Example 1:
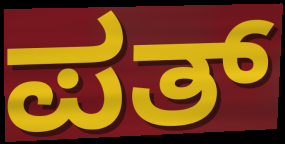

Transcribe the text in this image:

ಪತ್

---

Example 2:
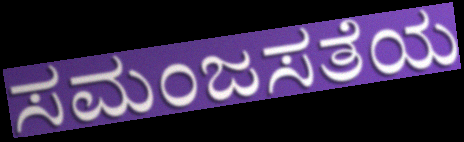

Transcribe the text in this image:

ಸಮಂಜಸತೆಯ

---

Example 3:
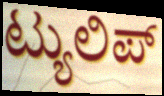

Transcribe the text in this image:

ಟ್ಯುಲಿಪ್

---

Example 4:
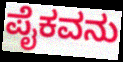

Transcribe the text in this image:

ಪೈಕವನು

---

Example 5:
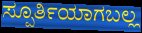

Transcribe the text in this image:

ಸ್ಪೂರ್ತಿಯಾಗಬಲ್ಲ